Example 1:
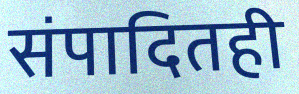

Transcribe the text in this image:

संपादितही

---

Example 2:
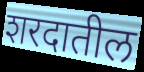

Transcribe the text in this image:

शरदातील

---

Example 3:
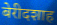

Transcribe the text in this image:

बेरीदशाह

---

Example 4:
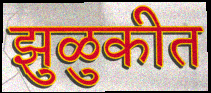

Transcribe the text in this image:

झुळुकीत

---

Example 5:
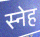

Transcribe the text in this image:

स्नेह